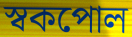
স্বকপোল